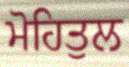
ਮੋਹਿਤੁਲ